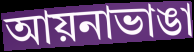
আয়নাভাঙা